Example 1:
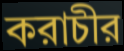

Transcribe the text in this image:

করাচীর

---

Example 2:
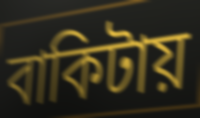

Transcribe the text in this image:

বাকিটায়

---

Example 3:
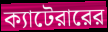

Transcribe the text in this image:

ক্যাটেরারের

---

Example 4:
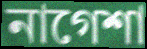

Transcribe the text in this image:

নাগেশা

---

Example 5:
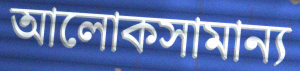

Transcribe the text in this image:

আলোকসামান্য